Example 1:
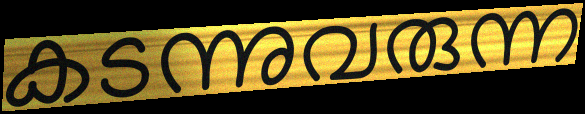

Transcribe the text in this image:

കടന്നുവരുന്ന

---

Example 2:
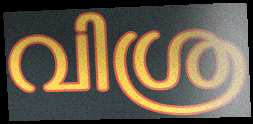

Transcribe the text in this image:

വിശ്ര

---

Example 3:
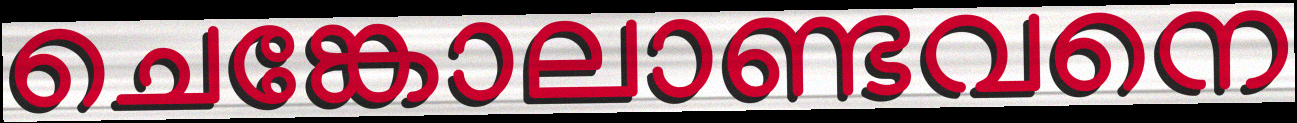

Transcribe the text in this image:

ചെങ്കോലാണ്ടവനെ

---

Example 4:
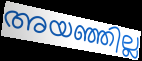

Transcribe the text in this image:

അയഞ്ഞില്ല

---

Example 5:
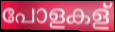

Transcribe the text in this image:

പോളകള്